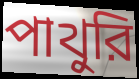
পাথুরি